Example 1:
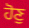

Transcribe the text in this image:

ਹੋਣੁ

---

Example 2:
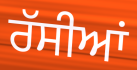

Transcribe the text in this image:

ਰੱਸੀਆਂ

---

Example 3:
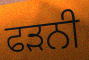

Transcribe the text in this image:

ਫੜਨੀ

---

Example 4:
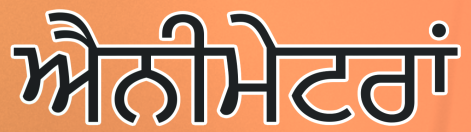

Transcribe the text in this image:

ਐਨੀਮੇਟਰਾਂ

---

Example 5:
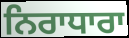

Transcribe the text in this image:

ਨਿਰਾਧਾਰਾ